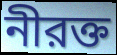
নীরক্ত